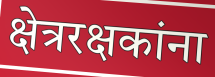
क्षेत्ररक्षकांना